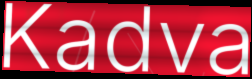
Kadva